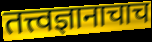
तत्त्वज्ञानाचाच